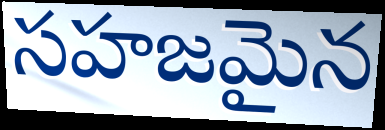
సహజమైన